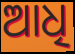
ଆଧି